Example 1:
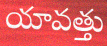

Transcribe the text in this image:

యావత్తు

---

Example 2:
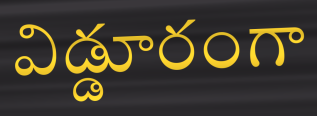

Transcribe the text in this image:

విడ్డూరంగా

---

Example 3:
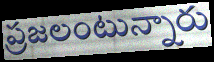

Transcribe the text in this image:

ప్రజలంటున్నారు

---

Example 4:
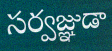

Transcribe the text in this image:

సర్వజ్ఞుడా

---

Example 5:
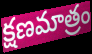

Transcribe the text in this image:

క్షణమాత్రం